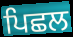
ਪਿਛਲ